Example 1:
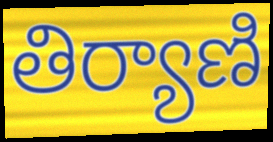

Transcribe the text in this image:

తిర్యాణి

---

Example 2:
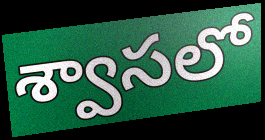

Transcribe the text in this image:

శ్వాసలో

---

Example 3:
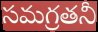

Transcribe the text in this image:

సమగ్రతనీ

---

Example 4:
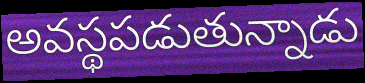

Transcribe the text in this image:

అవస్థపడుతున్నాడు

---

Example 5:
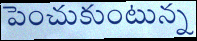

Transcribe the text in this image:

పెంచుకుంటున్న